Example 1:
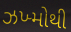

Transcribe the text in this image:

ઝખ્મોથી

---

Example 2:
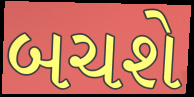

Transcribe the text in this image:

બચશે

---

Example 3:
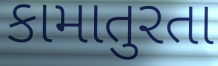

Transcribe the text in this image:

કામાતુરતા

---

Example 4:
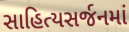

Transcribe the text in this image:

સાહિત્યસર્જનમાં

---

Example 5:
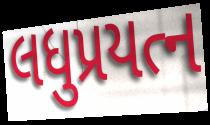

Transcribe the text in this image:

લધુપ્રયત્ન